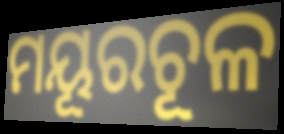
ମୟୂରଚୂଳ